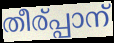
തീര്പ്പാന്